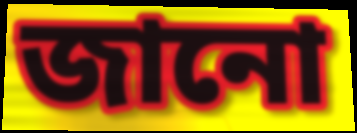
জানো